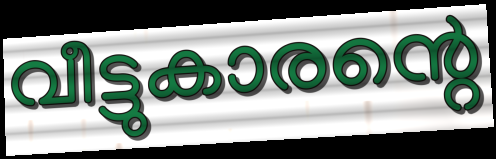
വീട്ടുകാരന്റെ